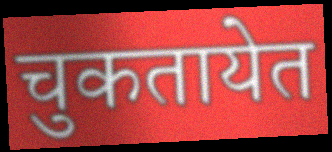
चुकतायेत